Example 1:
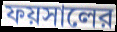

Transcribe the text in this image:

ফয়সালের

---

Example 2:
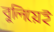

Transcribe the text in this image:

বুলিয়েই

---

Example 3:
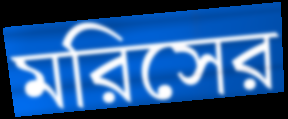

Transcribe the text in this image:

মরিসের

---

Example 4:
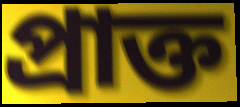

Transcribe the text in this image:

প্রাক্ত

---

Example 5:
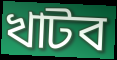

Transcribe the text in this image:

খাটব